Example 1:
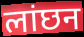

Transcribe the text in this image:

लांछन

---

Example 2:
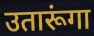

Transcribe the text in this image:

उतारूंगा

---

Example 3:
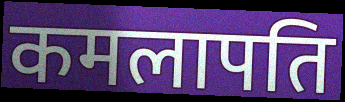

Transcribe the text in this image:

कमलापति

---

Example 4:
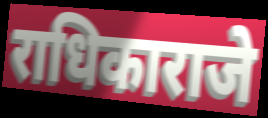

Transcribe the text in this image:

राधिकाराजे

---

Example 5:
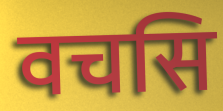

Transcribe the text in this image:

वचसि